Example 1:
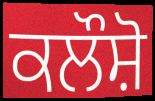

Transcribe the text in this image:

ਕਲੌਸ਼ੋ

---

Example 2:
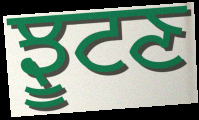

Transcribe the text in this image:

ਝੂਟਣ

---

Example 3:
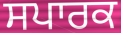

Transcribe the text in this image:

ਸਪਾਰਕ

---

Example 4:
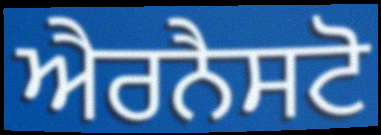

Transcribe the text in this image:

ਐਰਨੈਸਟੋ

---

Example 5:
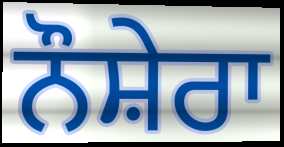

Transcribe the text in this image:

ਨੌਸ਼ੇਰਾ